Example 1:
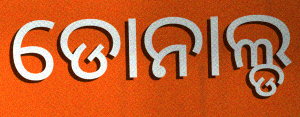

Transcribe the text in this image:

ଡୋନାଲ୍ଡ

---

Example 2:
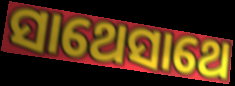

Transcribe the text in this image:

ସାଥେସାଥେ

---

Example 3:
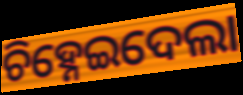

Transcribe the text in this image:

ଚିହ୍ନେଇଦେଲା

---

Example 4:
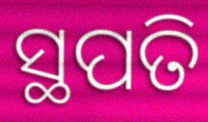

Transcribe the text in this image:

ସ୍ଥପତି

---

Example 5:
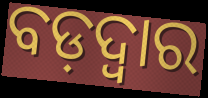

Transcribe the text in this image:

ବଡ଼ଦ୍ୱାର